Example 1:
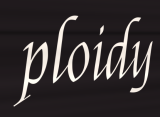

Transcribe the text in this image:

ploidy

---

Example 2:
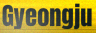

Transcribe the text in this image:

Gyeongju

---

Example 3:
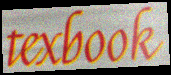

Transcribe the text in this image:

texbook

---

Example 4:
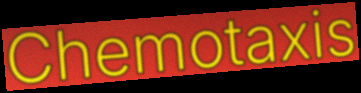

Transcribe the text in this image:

Chemotaxis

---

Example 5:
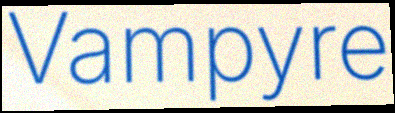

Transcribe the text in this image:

Vampyre